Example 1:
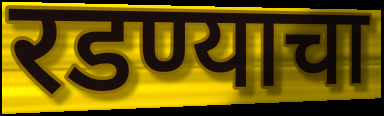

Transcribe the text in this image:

रडण्याचा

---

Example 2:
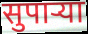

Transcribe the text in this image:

सुपार्‍या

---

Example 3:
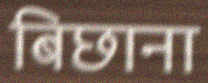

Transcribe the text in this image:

बिछाना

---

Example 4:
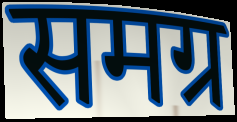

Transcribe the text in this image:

समग्र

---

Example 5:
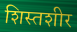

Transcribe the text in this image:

शिस्तशीर